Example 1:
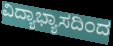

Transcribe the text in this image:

ವಿದ್ಯಾಭ್ಯಾಸದಿಂದ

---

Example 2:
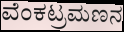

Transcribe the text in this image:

ವೆಂಕಟ್ರಮಣನ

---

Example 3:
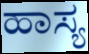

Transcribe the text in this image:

ಹಾಸ್ಯ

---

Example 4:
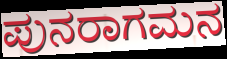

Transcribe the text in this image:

ಪುನರಾಗಮನ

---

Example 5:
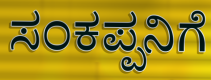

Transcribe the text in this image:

ಸಂಕಪ್ಪನಿಗೆ